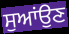
ਸੁਆਂਉਣ